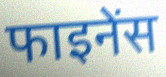
फाइनेंस